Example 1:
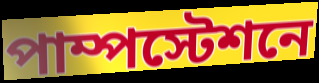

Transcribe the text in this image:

পাম্পস্টেশনে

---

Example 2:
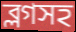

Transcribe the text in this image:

ব্লগসহ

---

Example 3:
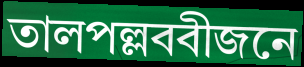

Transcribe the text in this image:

তালপল্লববীজনে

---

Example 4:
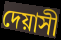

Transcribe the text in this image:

দেয়াসী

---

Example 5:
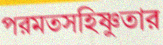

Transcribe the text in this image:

পরমতসহিষ্ণুতার